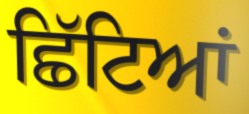
ਛਿੱਟਿਆਂ